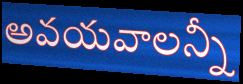
అవయవాలన్నీ